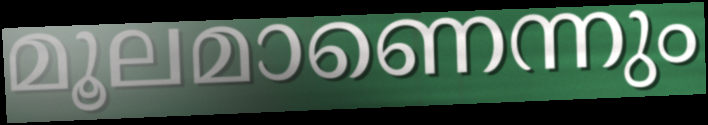
മൂലമാണെന്നും